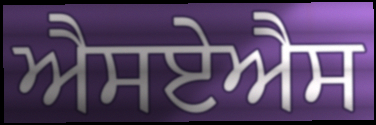
ਐਸਏਐਸ